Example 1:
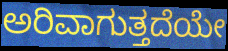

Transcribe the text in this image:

ಅರಿವಾಗುತ್ತದೆಯೇ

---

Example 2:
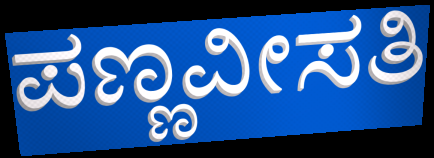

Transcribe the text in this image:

ಪಣ್ಣವೀಸತಿ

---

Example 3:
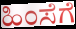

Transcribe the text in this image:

ಹಿಂಸೆಗೆ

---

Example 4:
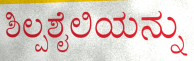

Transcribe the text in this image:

ಶಿಲ್ಪಶೈಲಿಯನ್ನು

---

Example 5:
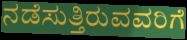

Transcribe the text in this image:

ನಡೆಸುತ್ತಿರುವವರಿಗೆ